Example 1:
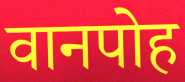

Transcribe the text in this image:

वानपोह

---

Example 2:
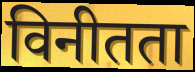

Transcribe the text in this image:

विनीतता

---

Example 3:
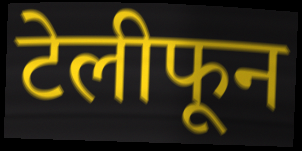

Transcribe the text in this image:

टेलीफून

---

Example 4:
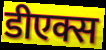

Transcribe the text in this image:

डीएक्स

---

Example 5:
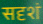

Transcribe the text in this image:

सदृशं